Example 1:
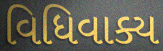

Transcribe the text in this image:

વિધિવાક્ય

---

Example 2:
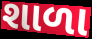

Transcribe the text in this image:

શાળા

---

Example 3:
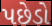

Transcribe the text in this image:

પછેડો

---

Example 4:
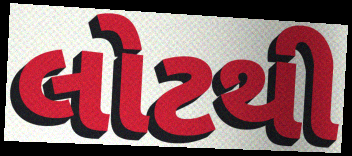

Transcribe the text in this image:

લોટથી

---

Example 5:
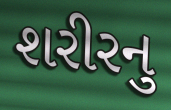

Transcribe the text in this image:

શરીરનુ